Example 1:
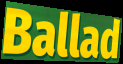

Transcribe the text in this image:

Ballad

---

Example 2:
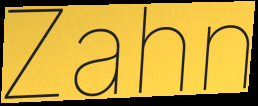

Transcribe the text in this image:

Zahn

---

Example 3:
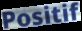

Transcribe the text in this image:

Positif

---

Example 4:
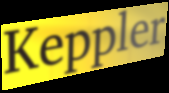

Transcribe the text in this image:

Keppler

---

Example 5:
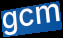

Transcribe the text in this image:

gcm